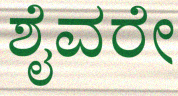
ಶೈವರೇ